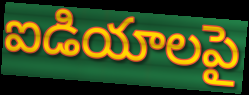
ఐడియాలపై